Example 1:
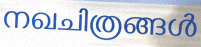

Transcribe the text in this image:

നഖചിത്രങ്ങൾ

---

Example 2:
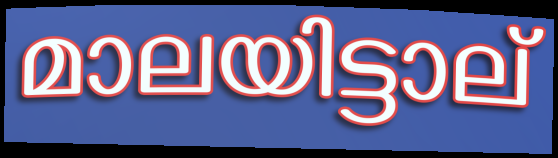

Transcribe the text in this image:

മാലയിട്ടാല്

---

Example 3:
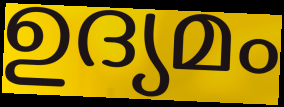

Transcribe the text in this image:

ഉദ്യമം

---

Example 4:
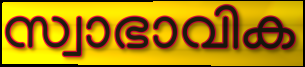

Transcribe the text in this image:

സ്വാഭാവിക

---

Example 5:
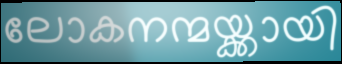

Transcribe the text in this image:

ലോകനന്മയ്ക്കായി